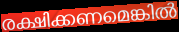
രക്ഷിക്കണമെങ്കിൽ